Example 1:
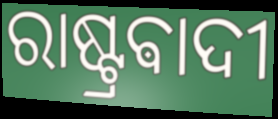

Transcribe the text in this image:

ରାଷ୍ଟ୍ରଵାଦୀ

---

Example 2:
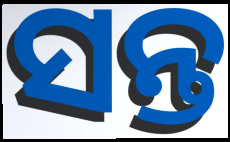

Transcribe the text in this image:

ସନ୍ତ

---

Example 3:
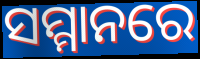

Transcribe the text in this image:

ସମ୍ମାନରେ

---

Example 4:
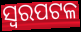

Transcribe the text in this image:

ସ୍ୱରପଟଳ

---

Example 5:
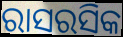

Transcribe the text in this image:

ରାସରସିକ